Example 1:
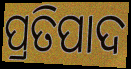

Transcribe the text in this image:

ପ୍ରତିପାଦ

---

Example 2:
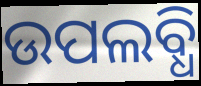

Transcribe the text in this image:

ଉପଲବ୍ଧି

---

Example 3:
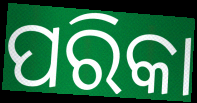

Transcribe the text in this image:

ପରିକା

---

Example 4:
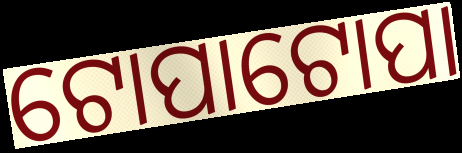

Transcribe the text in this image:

ଟୋପାଟୋପା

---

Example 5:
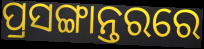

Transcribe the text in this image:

ପ୍ରସଙ୍ଗାନ୍ତରରେ